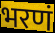
भरणं